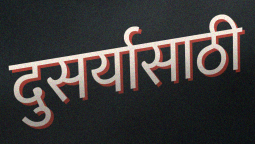
दुसर्यासाठी